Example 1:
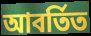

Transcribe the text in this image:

আবর্তিত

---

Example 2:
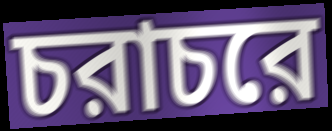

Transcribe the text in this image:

চরাচরে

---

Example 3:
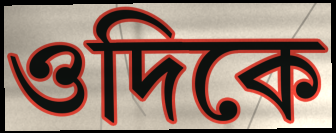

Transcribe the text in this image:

ওদিকে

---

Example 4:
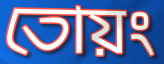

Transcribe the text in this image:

তোয়ং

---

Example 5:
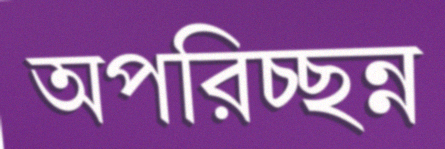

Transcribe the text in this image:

অপরিচ্ছন্ন